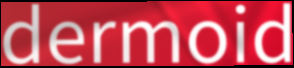
dermoid